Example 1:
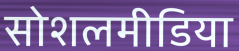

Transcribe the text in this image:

सोशलमीडिया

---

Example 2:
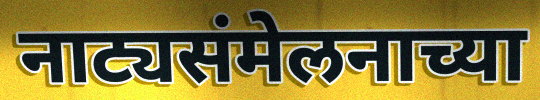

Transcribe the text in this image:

नाट्यसंमेलनाच्या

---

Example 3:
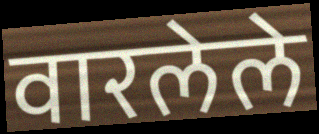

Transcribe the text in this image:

वारलेले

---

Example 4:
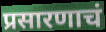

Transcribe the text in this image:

प्रसारणाचं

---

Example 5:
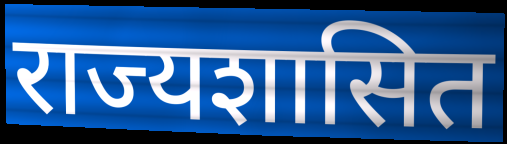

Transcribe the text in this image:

राज्यशासित